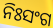
ନିଃସଂଗ